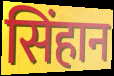
सिंहान